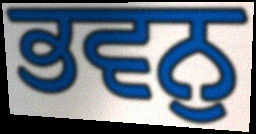
ਭਵਨੁ